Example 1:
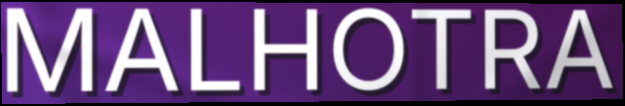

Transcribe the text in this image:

MALHOTRA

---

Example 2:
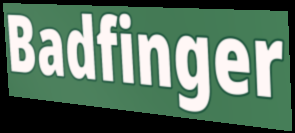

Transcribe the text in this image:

Badfinger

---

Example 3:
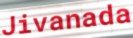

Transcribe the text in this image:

Jivanada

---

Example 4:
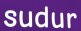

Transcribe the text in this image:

sudur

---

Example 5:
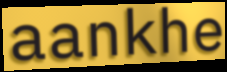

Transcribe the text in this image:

aankhe